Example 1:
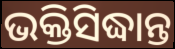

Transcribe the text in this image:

ଭକ୍ତିସିଦ୍ଧାନ୍ତ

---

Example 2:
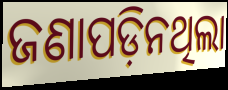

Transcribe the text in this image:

ଜଣାପଡ଼ିନଥିଲା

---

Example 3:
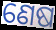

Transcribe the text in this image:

ଣେଷ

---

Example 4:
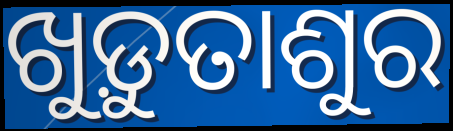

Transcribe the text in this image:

ଖୁଡ଼ୁତାଶୁର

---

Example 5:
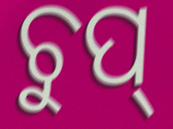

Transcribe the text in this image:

ଚୁପ୍